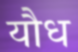
यौध